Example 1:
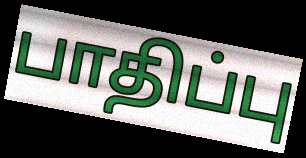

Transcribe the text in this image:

பாதிப்பு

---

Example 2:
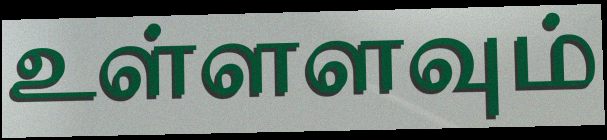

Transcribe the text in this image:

உள்ளளவும்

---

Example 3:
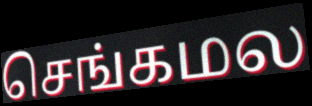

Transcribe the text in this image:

செங்கமல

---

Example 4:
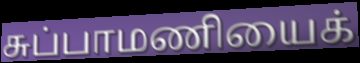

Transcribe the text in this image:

சுப்பாமணியைக்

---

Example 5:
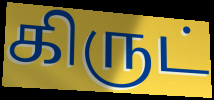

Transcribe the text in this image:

கிருட்